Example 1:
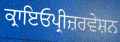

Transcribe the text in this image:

ਕ੍ਰਾਇਓਪ੍ਰੀਜ਼ਰਵੇਸ਼ਨ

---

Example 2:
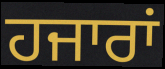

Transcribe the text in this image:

ਹਜਾਰਾਂ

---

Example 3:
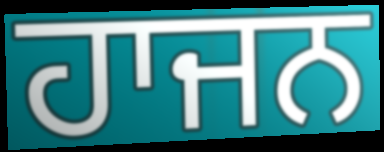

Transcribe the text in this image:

ਹਾਜਨ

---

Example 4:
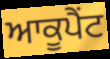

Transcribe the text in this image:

ਆਕੂਪੈਂਟ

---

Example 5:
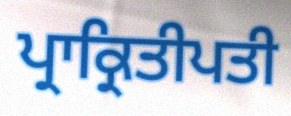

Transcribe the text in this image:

ਪ੍ਰਾਕ੍ਰਿਤੀਪਤੀ